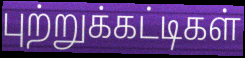
புற்றுக்கட்டிகள்